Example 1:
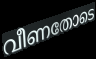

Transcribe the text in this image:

വീണതോടെ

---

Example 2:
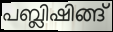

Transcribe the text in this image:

പബ്ലിഷിങ്ങ്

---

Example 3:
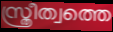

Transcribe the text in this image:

സ്ത്രീത്വത്തെ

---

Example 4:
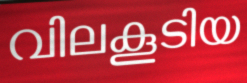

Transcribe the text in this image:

വിലകൂടിയ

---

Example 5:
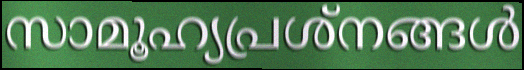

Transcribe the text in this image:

സാമൂഹ്യപ്രശ്നങ്ങൾ